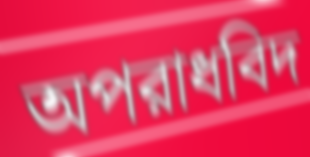
অপরাধবিদ